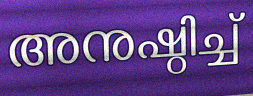
അനുഷ്ഠിച്ച്